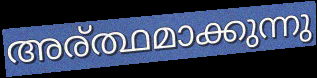
അര്ത്ഥമാക്കുന്നു